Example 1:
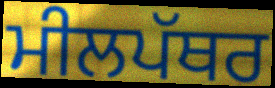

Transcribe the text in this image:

ਮੀਲਪੱਥਰ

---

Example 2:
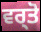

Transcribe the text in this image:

ਵਰ੍ਤੋ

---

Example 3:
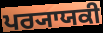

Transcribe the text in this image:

ਪਰ੍ਯਾਯਕੀ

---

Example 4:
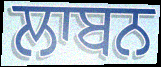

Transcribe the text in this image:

ਲਾਬਨ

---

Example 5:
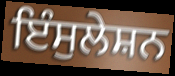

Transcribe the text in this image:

ਇੰਸੁਲੇਸ਼ਨ